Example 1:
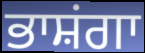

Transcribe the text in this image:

ਭਾਸ਼ਂਗਾ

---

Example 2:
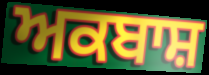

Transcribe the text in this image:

ਅਕਬਾਸ਼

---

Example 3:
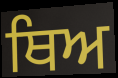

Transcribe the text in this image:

ਥਿਅ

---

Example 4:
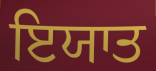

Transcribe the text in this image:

ਇਯਾਤ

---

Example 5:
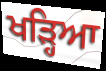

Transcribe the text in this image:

ਖੜ੍ਹਿਆ